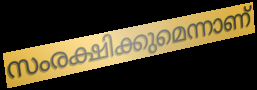
സംരക്ഷിക്കുമെന്നാണ്